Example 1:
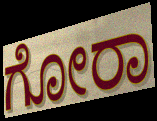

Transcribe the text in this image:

ಗೋರಾ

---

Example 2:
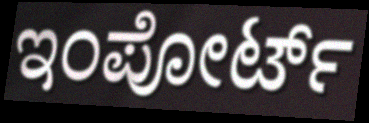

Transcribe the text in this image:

ಇಂಪೋರ್ಟ್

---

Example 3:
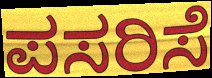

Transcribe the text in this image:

ಪಸರಿಸೆ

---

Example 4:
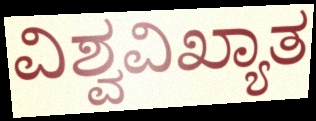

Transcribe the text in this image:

ವಿಶ್ವವಿಖ್ಯಾತ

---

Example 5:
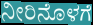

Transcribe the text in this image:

ನೀರಿನೊಳಗೆ